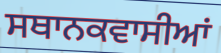
ਸਥਾਨਕਵਾਸੀਆਂ